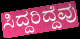
ಸಿದ್ದರಿದ್ದೆವು